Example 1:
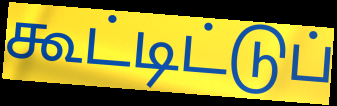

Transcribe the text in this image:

கூட்டிட்டுப்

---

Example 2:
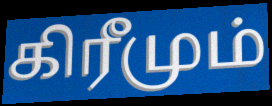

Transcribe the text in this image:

கிரீமும்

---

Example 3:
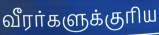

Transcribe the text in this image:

வீரர்களுக்குரிய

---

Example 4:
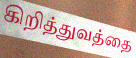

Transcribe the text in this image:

கிறித்துவத்தை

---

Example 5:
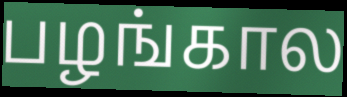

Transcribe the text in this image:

பழங்கால